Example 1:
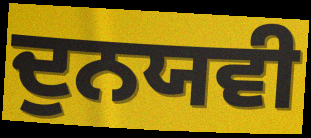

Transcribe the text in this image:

ਦੁਨਯਵੀ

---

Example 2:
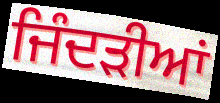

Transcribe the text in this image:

ਜਿੰਦੜੀਆਂ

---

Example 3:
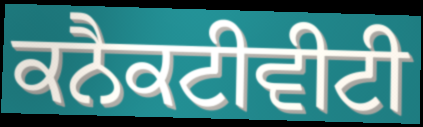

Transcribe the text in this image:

ਕਨੈਕਟੀਵੀਟੀ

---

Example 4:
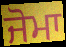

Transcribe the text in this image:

ਜੋਮਾ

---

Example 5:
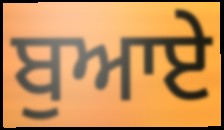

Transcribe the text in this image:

ਬੁਆਏ